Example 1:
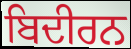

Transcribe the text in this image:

ਬਿਦੀਰਨ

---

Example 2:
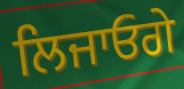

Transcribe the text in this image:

ਲਿਜਾਓਗੇ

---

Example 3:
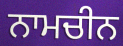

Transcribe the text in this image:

ਨਾਮਚੀਨ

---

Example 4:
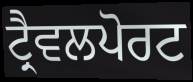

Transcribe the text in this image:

ਟ੍ਰੈਵਲਪੋਰਟ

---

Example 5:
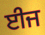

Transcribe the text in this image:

ਈਜ